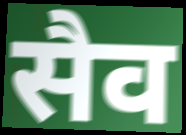
सैव